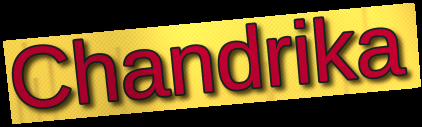
Chandrika